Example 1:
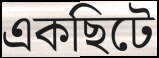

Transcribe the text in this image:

একছিটে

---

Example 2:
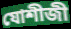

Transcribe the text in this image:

যোশীজী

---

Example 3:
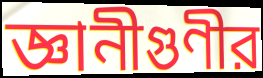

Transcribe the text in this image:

জ্ঞানীগুণীর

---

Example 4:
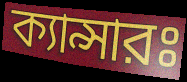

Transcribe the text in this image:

ক্যান্সারঃ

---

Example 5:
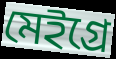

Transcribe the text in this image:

মেইগ্রে